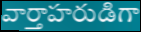
వార్తాహరుడిగా